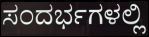
ಸಂದರ್ಭಗಳಲ್ಲಿ